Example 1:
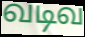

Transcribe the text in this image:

வடிவ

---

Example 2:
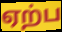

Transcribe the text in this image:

ஏற்ப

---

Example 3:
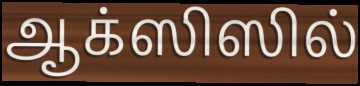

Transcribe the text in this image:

ஆக்ஸிஸில்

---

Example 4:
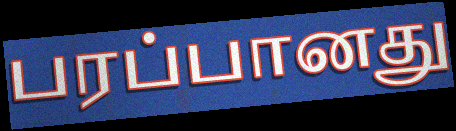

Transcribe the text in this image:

பரப்பானது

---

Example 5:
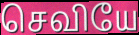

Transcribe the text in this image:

செவியே